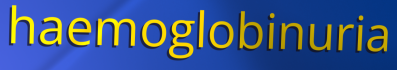
haemoglobinuria